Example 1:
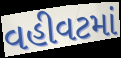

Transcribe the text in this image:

વહીવટમાં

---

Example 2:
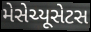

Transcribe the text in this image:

મેસેચ્યૂસેટસ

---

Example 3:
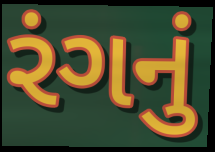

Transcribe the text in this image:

રંગનું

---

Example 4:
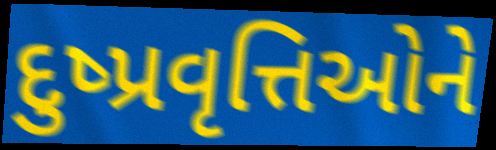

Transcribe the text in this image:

દુષ્પ્રવૃત્તિઓને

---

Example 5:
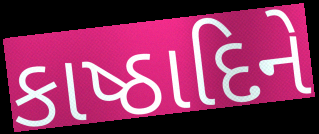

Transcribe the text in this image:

કાષ્ઠાદિને